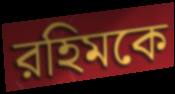
রহিমকে